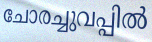
ചോരച്ചുവപ്പിൽ